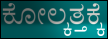
ಕೋಲ್ಕತ್ತಕ್ಕೆ